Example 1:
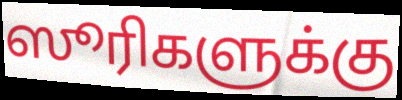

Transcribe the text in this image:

ஸூரிகளுக்கு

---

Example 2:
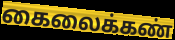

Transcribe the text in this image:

கைலைக்கண்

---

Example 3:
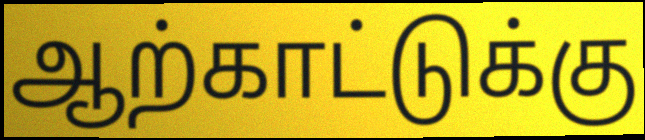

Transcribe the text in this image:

ஆற்காட்டுக்கு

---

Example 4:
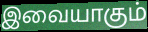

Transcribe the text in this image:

இவையாகும்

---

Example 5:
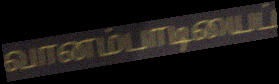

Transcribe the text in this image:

வானம்பாடியைப்